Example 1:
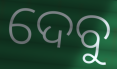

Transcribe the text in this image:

ଦେବୁ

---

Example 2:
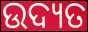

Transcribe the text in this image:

ଉଦ୍ୟତ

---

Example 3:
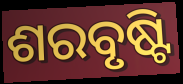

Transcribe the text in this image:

ଶରବୃଷ୍ଟି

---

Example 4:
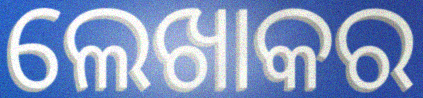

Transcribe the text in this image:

ଲେଖାକର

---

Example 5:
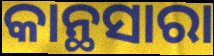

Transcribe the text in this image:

କାନ୍ଥସାରା